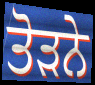
ਤੋੜਨੇ